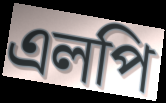
এলপি